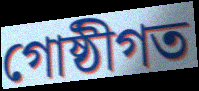
গোষ্ঠীগত